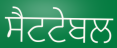
ਸੈਟਟੇਬਲ